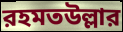
রহমতউল্লার